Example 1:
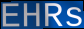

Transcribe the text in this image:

EHRs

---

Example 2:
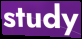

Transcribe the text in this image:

study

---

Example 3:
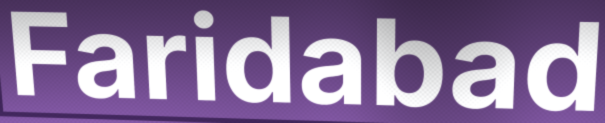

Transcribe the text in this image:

Faridabad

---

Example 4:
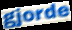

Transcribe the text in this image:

gjorde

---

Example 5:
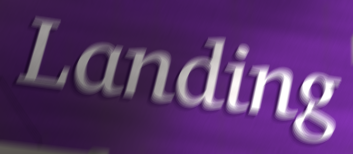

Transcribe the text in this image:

Landing